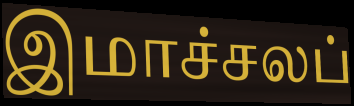
இமாச்சலப்